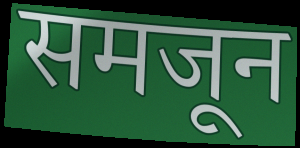
समजून